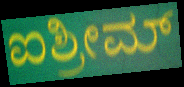
ಐಶ್ರೀಮ್